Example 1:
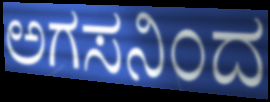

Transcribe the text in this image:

ಅಗಸನಿಂದ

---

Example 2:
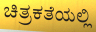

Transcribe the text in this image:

ಚಿತ್ರಕತೆಯಲ್ಲಿ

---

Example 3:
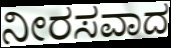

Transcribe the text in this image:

ನೀರಸವಾದ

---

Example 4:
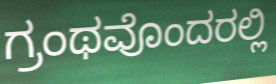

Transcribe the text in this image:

ಗ್ರಂಥವೊಂದರಲ್ಲಿ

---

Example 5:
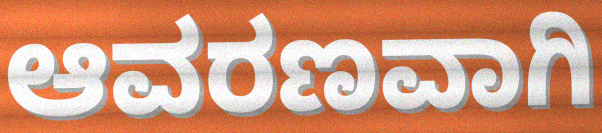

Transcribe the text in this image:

ಆವರಣವಾಗಿ